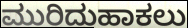
ಮುರಿದುಹಾಕಲು